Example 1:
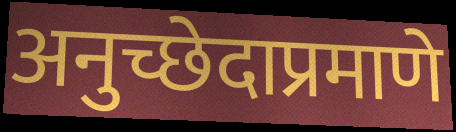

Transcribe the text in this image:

अनुच्छेदाप्रमाणे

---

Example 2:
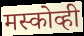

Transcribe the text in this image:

मस्कोव्ही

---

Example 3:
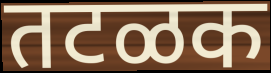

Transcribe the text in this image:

तटळक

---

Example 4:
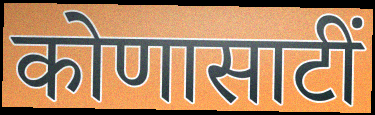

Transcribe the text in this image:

कोणासाटीं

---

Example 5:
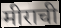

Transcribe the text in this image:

मीराची